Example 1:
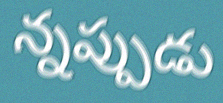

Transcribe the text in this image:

న్నప్పుడు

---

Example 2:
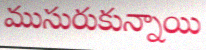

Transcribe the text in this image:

ముసురుకున్నాయి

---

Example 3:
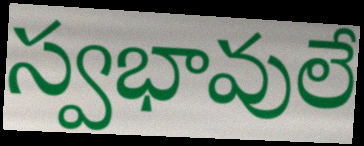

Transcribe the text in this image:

స్వభావులే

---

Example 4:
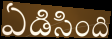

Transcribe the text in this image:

ఏడిసింది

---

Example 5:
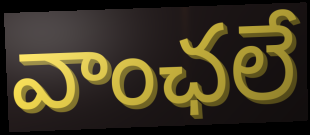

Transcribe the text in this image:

వాంఛలే